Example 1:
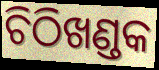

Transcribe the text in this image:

ଚିଠିଖଣ୍ଡକ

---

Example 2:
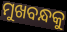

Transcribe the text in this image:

ମୁଖବନ୍ଧକୁ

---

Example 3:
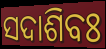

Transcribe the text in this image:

ସଦାଶିବଃ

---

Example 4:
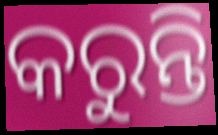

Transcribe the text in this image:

କରୁନ୍ତି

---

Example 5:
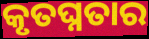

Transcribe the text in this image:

କୃତଘ୍ନତାର